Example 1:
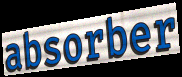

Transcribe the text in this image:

absorber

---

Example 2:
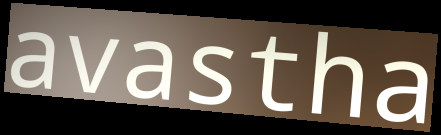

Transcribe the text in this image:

avastha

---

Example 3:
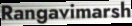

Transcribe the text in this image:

Rangavimarsh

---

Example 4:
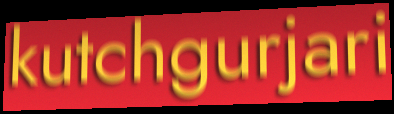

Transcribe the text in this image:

kutchgurjari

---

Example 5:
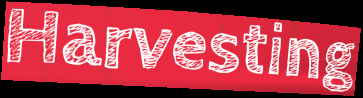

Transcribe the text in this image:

Harvesting